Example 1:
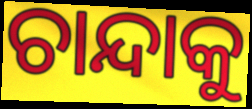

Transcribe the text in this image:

ଚାନ୍ଦାକୁ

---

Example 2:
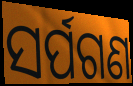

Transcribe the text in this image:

ସର୍ପଗଣ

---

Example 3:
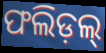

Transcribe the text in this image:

ଫଲିଡ଼ଲ୍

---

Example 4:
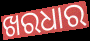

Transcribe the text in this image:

ଖରଧାର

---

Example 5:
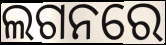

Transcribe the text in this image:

ଲଗନରେ